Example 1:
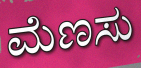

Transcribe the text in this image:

ಮೆಣಸು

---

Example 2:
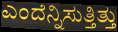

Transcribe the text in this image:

ಎಂದೆನ್ನಿಸುತ್ತಿತ್ತು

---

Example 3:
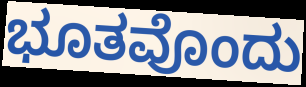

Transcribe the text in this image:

ಭೂತವೊಂದು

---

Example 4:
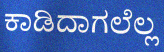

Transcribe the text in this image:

ಕಾಡಿದಾಗಲೆಲ್ಲ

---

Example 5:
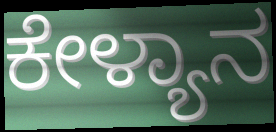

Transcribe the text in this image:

ಕೇಳ್ಯಾನ